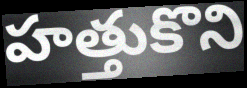
హత్తుకొని